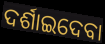
ଦର୍ଶାଇଦେବା